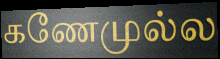
கணேமுல்ல